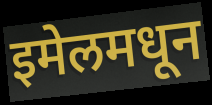
इमेलमधून